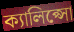
ক্যালিপ্সো